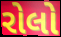
રોલો